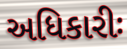
અધિકારીઃ